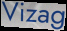
Vizag